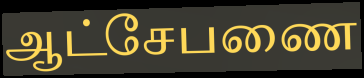
ஆட்சேபணை